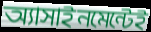
অ্যাসাইনমেন্টেই